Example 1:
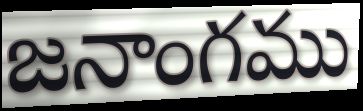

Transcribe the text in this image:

జనాంగము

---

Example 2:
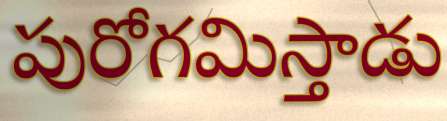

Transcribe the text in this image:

పురోగమిస్తాడు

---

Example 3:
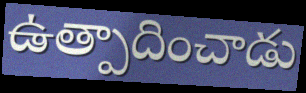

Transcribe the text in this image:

ఉత్పాదించాడు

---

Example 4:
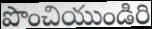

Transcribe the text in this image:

పొంచియుండిరి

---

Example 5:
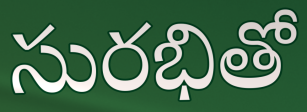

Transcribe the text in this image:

సురభితో